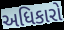
અધિકારો